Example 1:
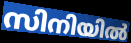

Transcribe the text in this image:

സിനിയിൽ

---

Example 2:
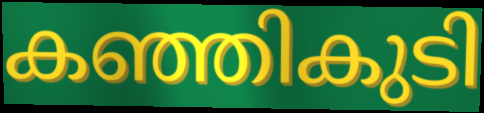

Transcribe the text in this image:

കഞ്ഞികുടി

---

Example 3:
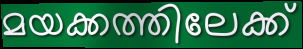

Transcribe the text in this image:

മയക്കത്തിലേക്ക്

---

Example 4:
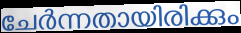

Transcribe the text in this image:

ചേർന്നതായിരിക്കും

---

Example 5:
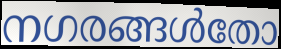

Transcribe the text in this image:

നഗരങ്ങൾതോ